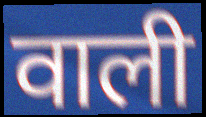
वाली